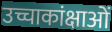
उच्चाकांक्षाओं